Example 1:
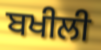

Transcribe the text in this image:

ਬਖੀਲੀ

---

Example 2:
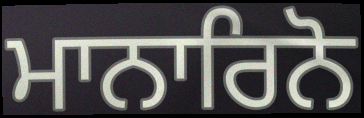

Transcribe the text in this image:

ਮਾਨਾਰਿਨੋ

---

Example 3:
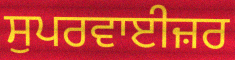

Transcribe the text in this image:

ਸੁਪਰਵਾਈਜ਼ਰ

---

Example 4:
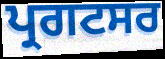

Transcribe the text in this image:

ਪ੍ਰਗਟਸਰ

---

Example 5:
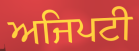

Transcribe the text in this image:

ਅਜਿਪਟੀ